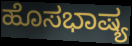
ಹೊಸಭಾಷ್ಯ